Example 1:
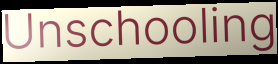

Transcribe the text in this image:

Unschooling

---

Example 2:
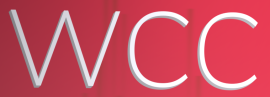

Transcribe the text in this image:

WCC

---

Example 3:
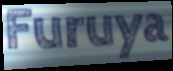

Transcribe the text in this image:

Furuya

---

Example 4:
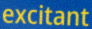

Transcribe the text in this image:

excitant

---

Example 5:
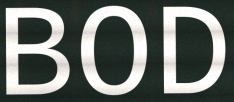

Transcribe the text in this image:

BOD